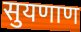
सुयणाण